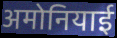
अमोनियाई